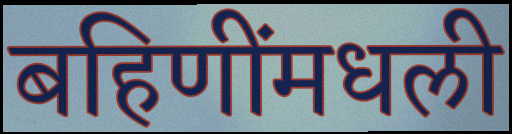
बहिणींमधली